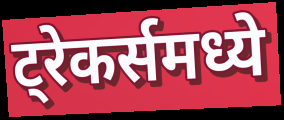
ट्रेकर्समध्ये